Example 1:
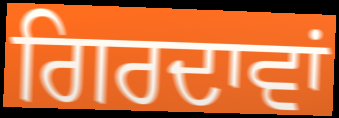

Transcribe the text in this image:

ਗਿਰਦਾਵਾਂ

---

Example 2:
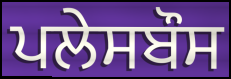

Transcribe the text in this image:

ਪਲੇਸਬੌਸ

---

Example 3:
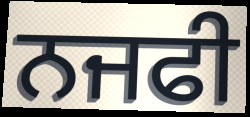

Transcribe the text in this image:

ਨਜਫੀ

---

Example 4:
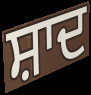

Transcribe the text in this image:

ਸ਼ਾਦ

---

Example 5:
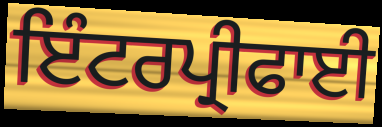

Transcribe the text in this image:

ਇੰਟਰਪ੍ਰੀਫਾਈ